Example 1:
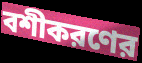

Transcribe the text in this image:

বশীকরণের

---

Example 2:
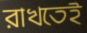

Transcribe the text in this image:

রাখতেই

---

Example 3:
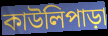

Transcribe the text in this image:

কাউলিপাড়া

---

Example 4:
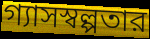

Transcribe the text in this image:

গ্যাসস্বল্পতার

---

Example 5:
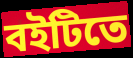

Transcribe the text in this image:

বইটিতে